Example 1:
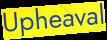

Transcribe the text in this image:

Upheaval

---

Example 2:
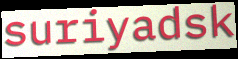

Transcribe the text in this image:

suriyadsk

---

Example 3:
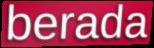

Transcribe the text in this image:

berada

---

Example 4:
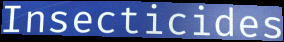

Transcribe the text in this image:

Insecticides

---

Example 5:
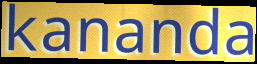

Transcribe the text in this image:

kananda